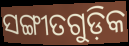
ସଙ୍ଗୀତଗୁଡ଼ିକ